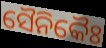
ସୈନିକୈଃ